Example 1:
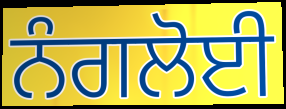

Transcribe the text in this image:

ਨੰਗਲੋਈ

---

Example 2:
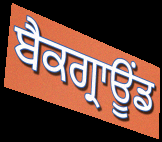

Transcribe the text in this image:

ਬੈਕਗ੍ਰਾਊਂਡ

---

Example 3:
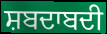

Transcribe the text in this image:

ਸ਼ਬਦਾਬਦੀ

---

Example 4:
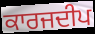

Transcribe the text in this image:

ਕਾਰਜਦੀਪ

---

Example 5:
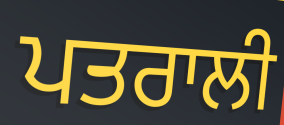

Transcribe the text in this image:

ਪਤਰਾਲੀ